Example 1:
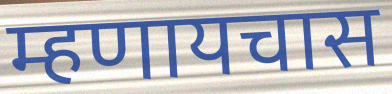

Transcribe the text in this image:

म्हणायचास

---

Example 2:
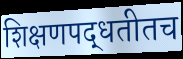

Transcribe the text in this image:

शिक्षणपद्धतीतच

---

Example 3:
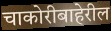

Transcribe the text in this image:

चाकोरीबाहेरील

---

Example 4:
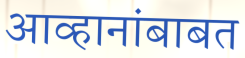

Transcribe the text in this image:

आव्हानांबाबत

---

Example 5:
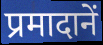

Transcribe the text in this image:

प्रमादानें